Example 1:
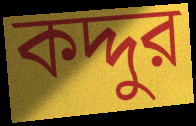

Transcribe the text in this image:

কদ্দুর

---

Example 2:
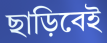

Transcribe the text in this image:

ছাড়িবেই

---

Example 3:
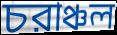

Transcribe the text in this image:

চরাঞ্চল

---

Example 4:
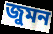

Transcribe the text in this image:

জুমন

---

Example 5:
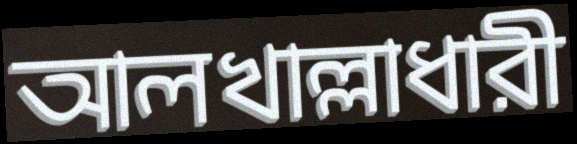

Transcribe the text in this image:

আলখাল্লাধারী